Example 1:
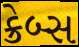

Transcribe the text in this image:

ક્રેબ્સ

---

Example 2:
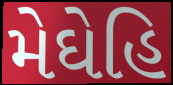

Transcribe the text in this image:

મેઘેહિ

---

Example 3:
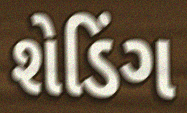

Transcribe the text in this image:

શેડિંગ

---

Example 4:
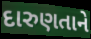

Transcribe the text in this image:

દારુણતાને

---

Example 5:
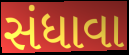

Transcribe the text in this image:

સંધાવા